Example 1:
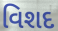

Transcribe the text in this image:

વિશદ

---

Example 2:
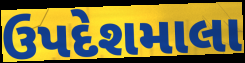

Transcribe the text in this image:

ઉપદેશમાલા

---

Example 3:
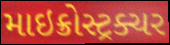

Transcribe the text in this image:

માઇક્રોસ્ટ્રક્ચર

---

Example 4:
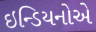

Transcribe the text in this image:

ઇન્ડિયનોએ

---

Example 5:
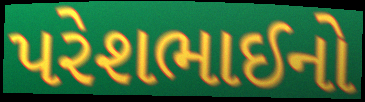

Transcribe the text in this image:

પરેશભાઈનો